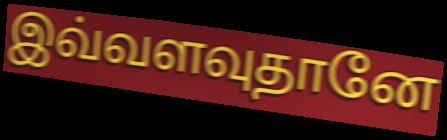
இவ்வளவுதானே